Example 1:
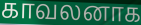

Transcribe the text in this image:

காவலனாக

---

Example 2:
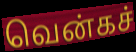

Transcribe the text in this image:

வென்கச்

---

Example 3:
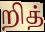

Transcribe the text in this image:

றித்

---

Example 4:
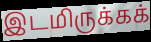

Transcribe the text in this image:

இடமிருக்கக்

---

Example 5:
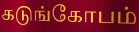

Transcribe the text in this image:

கடுங்கோபம்